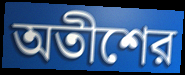
অতীশের